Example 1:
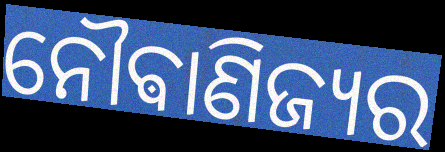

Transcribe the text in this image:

ନୌଵାଣିଜ୍ୟର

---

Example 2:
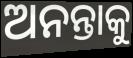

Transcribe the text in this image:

ଅନନ୍ତାକୁ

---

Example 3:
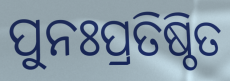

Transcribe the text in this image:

ପୁନଃପ୍ରତିଷ୍ଠିତ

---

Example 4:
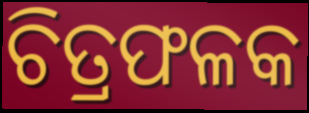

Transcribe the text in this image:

ଚିତ୍ରଫଳକ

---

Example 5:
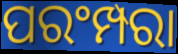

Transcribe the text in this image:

ପରଂମ୍ପରା